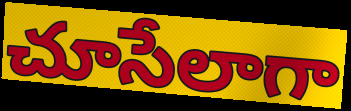
చూసేలాగా